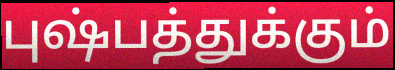
புஷ்பத்துக்கும்